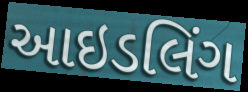
આઇડલિંગ